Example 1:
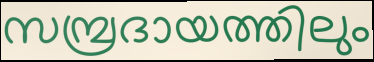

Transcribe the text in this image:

സമ്പ്രദായത്തിലും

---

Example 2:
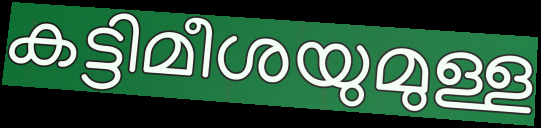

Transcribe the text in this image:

കട്ടിമീശയുമുള്ള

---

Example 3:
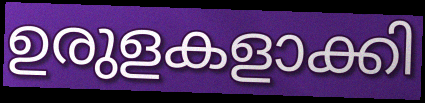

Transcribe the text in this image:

ഉരുളകളാക്കി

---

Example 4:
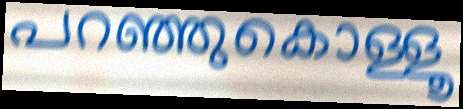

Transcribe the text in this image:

പറഞ്ഞുകൊള്ളൂ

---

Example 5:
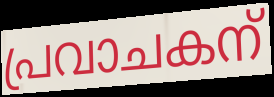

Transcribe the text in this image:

പ്രവാചകന്